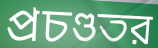
প্রচণ্ডতর